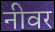
नीवर